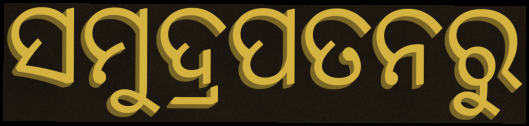
ସମୁଦ୍ରପତନରୁ